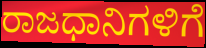
ರಾಜಧಾನಿಗಳಿಗೆ